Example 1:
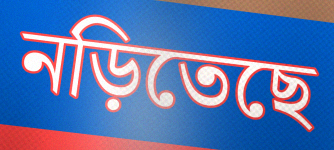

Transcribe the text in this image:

নড়িতেছে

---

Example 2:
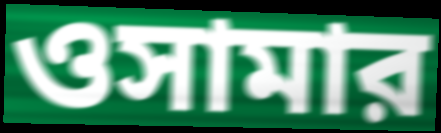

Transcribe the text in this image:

ওসামার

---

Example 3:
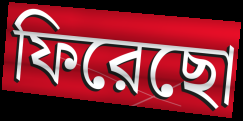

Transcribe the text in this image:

ফিরেছো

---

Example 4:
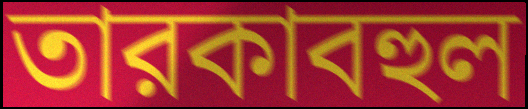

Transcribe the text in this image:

তারকাবহুল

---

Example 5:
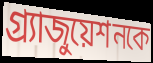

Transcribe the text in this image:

গ্র্যাজুয়েশনকে